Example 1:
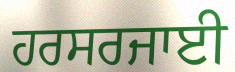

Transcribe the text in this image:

ਹਰਸਰਜਾਈ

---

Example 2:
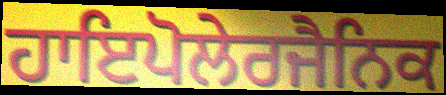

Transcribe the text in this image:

ਹਾਇਪੋਲੇਰਜੈਨਿਕ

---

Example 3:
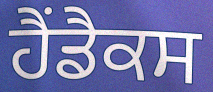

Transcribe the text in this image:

ਹੈਂਡੈਕਸ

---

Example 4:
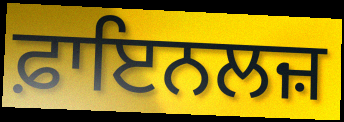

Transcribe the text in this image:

ਫ਼ਾਇਨਲਜ਼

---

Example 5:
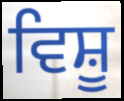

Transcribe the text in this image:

ਵਿਸ਼ੂ